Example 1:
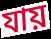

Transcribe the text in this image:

যায়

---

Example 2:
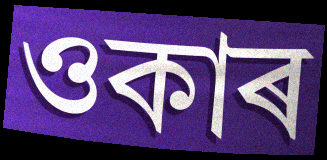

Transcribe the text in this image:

ওকাৰ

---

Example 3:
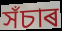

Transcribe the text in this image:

সঁচাৰ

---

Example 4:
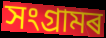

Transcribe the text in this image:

সংগ্ৰামৰ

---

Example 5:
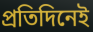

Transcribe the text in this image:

প্ৰতিদিনেই